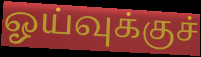
ஓய்வுக்குச்